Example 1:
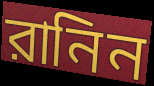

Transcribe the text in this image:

রানিন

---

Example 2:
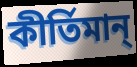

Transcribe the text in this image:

কীর্তিমান্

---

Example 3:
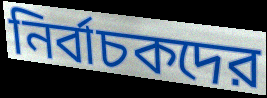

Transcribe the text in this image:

নির্বাচকদের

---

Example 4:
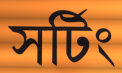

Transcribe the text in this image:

সর্টিং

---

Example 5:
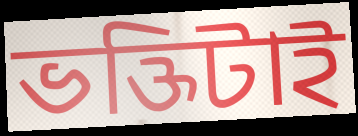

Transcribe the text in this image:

ভক্তিটাই